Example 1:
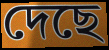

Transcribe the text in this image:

দেছে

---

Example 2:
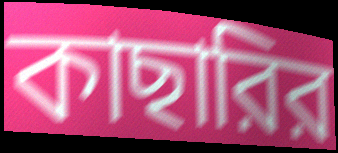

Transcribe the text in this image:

কাছারির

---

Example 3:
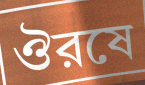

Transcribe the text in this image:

ঔরষে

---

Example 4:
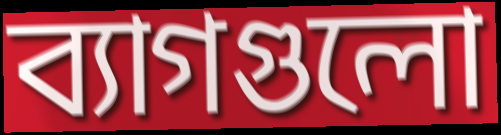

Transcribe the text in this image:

ব্যাগগুলো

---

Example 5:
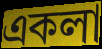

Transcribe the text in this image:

একলা